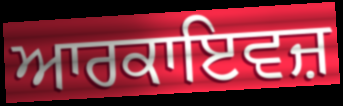
ਆਰਕਾਇਵਜ਼